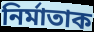
নিৰ্মাতাক